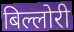
बिल्लोरी